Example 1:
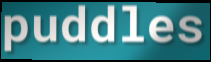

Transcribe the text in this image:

puddles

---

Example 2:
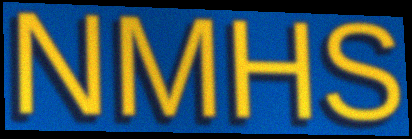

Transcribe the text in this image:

NMHS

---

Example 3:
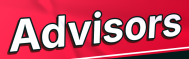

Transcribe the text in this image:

Advisors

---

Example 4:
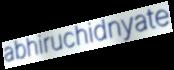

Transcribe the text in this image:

abhiruchidnyate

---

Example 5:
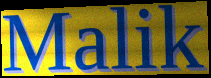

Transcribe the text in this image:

Malik